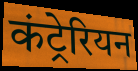
कंट्रेरियन